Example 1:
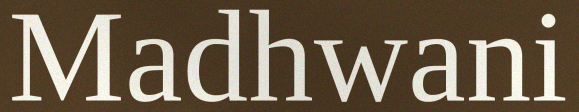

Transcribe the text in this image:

Madhwani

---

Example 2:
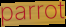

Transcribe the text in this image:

parrot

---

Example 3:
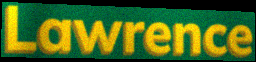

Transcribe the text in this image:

Lawrence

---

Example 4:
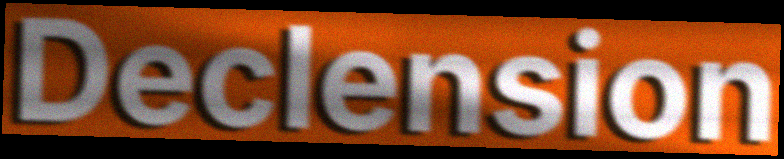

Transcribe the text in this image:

Declension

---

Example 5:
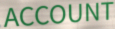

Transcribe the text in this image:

ACCOUNT